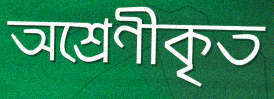
অশ্ৰেণীকৃত